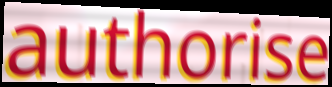
authorise